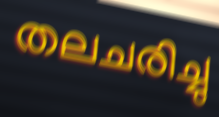
തലചരിച്ചു